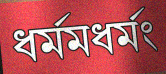
ধর্মমধর্মং